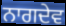
ਨਾਗਦੇਵ